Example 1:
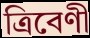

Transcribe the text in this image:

ত্রিবেণী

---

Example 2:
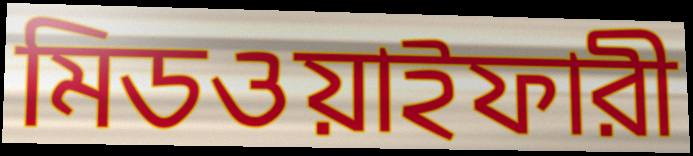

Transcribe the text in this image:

মিডওয়াইফারী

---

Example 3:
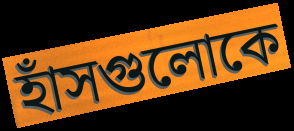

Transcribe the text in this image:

হাঁসগুলোকে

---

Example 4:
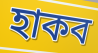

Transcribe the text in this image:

হাকব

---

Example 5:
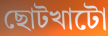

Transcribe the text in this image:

ছোটখাটো